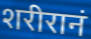
शरीरानं